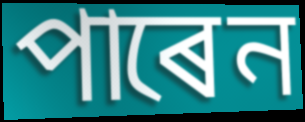
পাৰেন